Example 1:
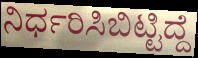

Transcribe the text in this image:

ನಿರ್ಧರಿಸಿಬಿಟ್ಟಿದ್ದೆ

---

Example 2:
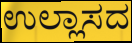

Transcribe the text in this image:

ಉಲ್ಲಾಸದ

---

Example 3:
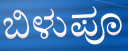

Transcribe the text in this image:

ಬಿಳುಪೂ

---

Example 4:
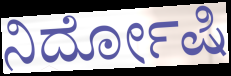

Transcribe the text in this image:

ನಿರ್ದೋಷಿ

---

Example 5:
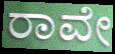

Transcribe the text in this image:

ರಾವೇ